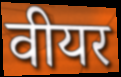
वीयर